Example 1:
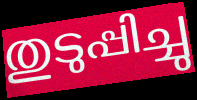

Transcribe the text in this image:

തുടുപ്പിച്ചു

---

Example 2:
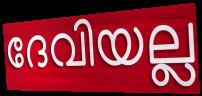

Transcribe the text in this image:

ദേവിയല്ല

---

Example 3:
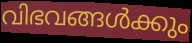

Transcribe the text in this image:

വിഭവങ്ങൾക്കും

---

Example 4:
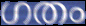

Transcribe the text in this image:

ഗതം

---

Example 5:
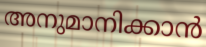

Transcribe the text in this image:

അനുമാനിക്കാൻ